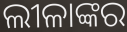
ଲୀଳାଙ୍କର